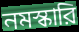
নমস্কারি